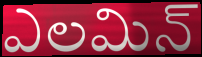
ఎలమిన్